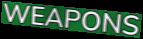
WEAPONS